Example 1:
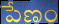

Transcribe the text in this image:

పేణం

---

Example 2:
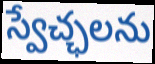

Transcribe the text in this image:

స్వేచ్ఛలను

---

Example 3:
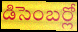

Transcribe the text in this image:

డిసెంబర్లో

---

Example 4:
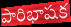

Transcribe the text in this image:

పారిభాషక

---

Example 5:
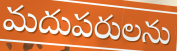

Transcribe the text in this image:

మదుపరులను